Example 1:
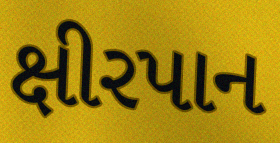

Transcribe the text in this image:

ક્ષીરપાન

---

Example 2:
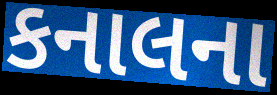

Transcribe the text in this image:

કનાલના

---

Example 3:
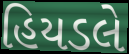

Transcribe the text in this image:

હિયડલે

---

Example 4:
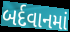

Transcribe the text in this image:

બર્દવાનમાં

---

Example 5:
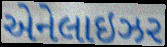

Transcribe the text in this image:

એનેલાઇઝર